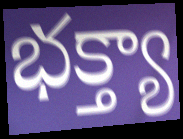
భక్త్యా